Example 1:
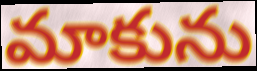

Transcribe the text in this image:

మాకును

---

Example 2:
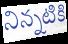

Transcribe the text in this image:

నిన్నటికి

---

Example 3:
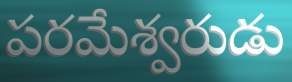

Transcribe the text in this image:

పరమేశ్వరుడు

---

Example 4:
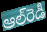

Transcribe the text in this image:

ఆల్‌రెడీ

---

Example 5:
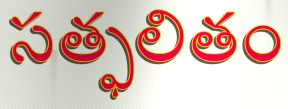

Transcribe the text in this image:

సత్ఫలితం